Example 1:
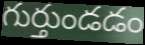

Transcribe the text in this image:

గుర్తుండడం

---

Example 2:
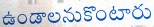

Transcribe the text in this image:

ఉండాలనుకొంటారు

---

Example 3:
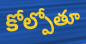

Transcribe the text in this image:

కోల్పోతూ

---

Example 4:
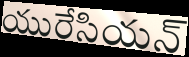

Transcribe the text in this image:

యురేసియన్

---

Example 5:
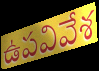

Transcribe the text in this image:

ఉపవివేశ